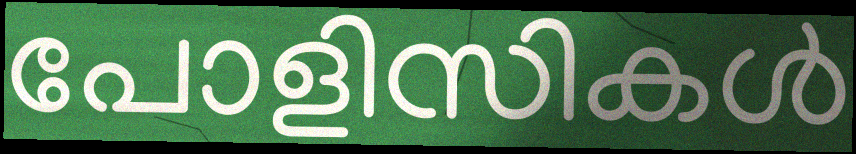
പോളിസികൾ